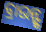
ବ୍ରାଉନ୍ଙ୍କ